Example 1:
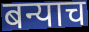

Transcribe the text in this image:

बन्याच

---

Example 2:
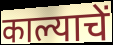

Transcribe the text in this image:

काल्याचें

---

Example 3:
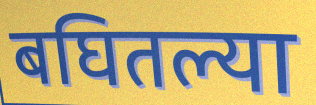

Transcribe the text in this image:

बघितल्या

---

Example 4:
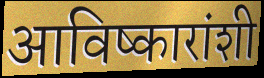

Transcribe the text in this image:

आविष्कारांशी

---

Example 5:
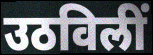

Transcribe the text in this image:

उठविलीं